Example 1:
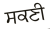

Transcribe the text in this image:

ਸਕਣੀ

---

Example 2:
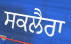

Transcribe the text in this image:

ਸਕਲੈਰਾ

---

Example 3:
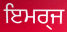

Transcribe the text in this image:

ਇਮਰ੍ਜ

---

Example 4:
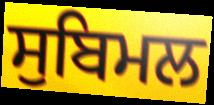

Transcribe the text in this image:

ਸੁਬਿਮਲ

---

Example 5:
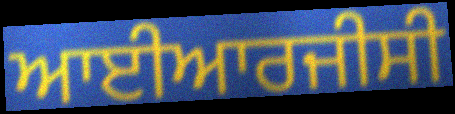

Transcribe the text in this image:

ਆਈਆਰਜੀਸੀ